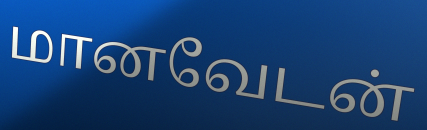
மானவேடன்